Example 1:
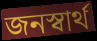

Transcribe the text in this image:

জনস্বার্থ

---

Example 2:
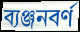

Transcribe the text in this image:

ব্যঞ্জনবর্ণ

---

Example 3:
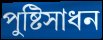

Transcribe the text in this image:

পুষ্টিসাধন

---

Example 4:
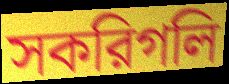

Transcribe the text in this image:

সকরিগলি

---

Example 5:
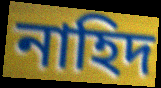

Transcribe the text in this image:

নাহিদ